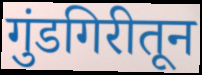
गुंडगिरीतून